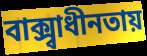
বাক্স্বাধীনতায়